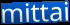
mittai